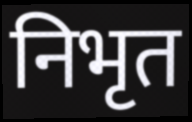
निभृत